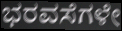
ಭರವಸೆಗಳೇ